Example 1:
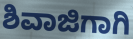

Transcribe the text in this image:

ಶಿವಾಜಿಗಾಗಿ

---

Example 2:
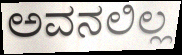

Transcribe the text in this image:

ಅವನಲಿಲ್ಲ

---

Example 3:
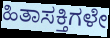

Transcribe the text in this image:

ಹಿತಾಸಕ್ತಿಗಳೇ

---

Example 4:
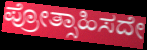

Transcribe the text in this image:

ಪ್ರೋತ್ಸಾಹಿಸದೇ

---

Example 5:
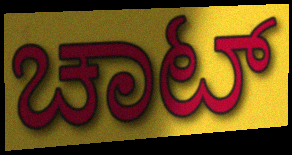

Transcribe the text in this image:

ಚಾಟ್